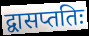
द्वासप्ततिः